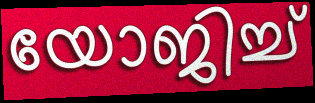
യോജിച്ച്